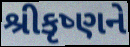
શ્રીકૃષ્ણને